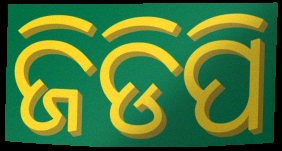
ଜିଡିପି